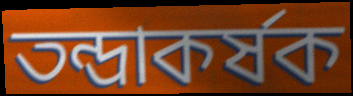
তন্দ্রাকর্ষক